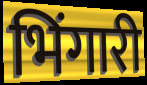
भिंगारी